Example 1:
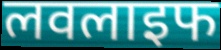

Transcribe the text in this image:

लवलाइफ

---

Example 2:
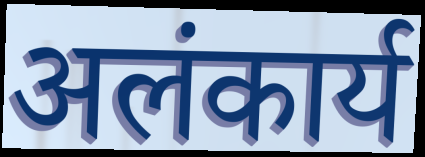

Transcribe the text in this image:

अलंकार्य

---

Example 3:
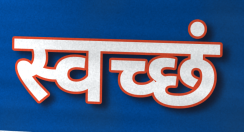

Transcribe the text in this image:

स्वच्छं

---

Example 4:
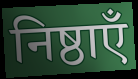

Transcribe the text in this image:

निष्ठाएँ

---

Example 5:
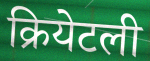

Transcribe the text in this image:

क्रियेटली